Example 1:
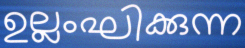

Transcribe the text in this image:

ഉല്ലംഘിക്കുന്ന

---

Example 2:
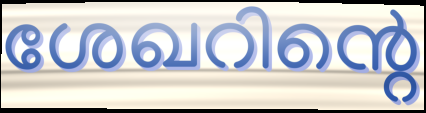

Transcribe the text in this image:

ശേഖറിന്റെ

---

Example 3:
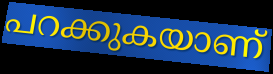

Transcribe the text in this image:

പറക്കുകയാണ്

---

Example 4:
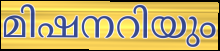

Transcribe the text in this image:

മിഷനറിയും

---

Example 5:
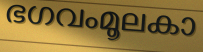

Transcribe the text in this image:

ഭഗവംമൂലകാ